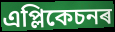
এপ্লিকেচনৰ